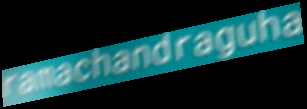
ramachandraguha